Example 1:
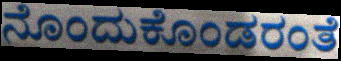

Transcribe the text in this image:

ನೊಂದುಕೊಂಡರಂತೆ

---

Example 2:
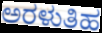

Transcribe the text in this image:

ಅರಳುತಿಹ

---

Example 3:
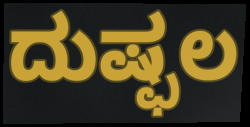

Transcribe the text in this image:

ದುಷ್ಫಲ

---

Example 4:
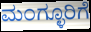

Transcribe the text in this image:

ಮಂಗ್ಳೂರಿಗೆ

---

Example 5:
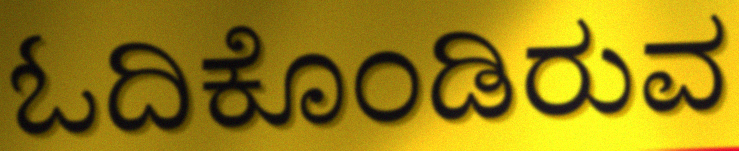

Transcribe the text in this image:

ಓದಿಕೊಂಡಿರುವ